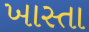
ખાસ્તા